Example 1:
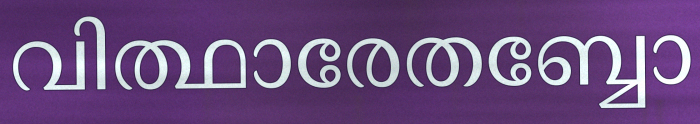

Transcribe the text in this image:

വിത്ഥാരേതബ്ബോ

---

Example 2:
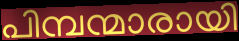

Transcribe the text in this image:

പിമ്പന്മാരായി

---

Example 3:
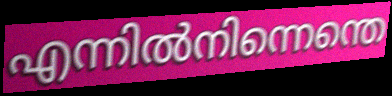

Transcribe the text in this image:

എന്നിൽനിന്നെന്തെ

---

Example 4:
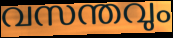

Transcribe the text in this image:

വസന്തവും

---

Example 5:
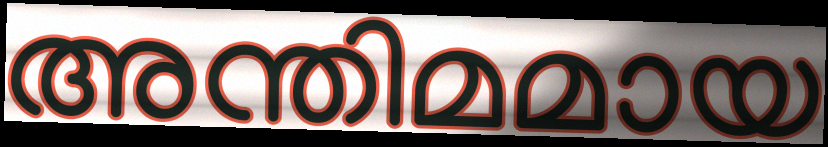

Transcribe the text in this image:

അന്തിമമായ